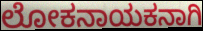
ಲೋಕನಾಯಕನಾಗಿ